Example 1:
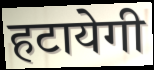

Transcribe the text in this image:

हटायेगी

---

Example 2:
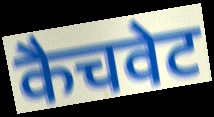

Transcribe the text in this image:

कैचवेट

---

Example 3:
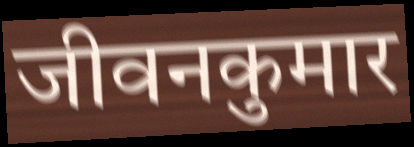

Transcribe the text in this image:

जीवनकुमार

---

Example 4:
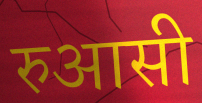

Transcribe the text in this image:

रुआसी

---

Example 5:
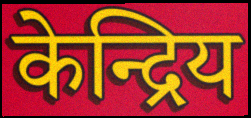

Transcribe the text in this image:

केन्द्रिय